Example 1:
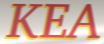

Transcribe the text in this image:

KEA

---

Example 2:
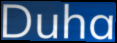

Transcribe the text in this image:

Duha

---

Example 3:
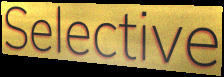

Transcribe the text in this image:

Selective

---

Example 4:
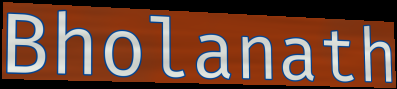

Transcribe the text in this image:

Bholanath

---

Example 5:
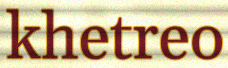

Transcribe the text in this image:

khetreo